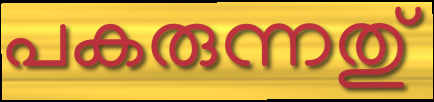
പകരുന്നതു്